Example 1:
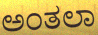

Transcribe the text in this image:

ಅಂತಲಾ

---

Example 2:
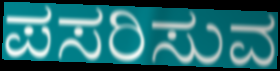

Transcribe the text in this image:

ಪಸರಿಸುವ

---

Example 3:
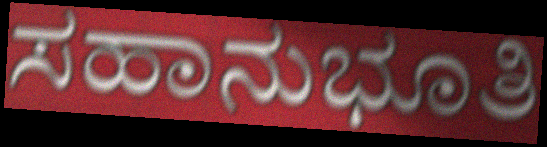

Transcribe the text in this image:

ಸಹಾನುಭೂತಿ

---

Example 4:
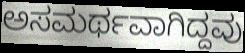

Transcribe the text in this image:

ಅಸಮರ್ಥವಾಗಿದ್ದವು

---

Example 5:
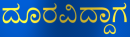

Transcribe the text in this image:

ದೂರವಿದ್ದಾಗ